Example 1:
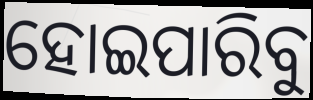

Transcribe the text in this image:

ହୋଇପାରିବୁ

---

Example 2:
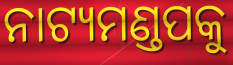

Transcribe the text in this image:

ନାଟ୍ୟମଣ୍ଡପକୁ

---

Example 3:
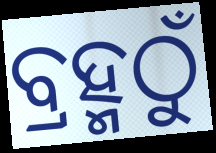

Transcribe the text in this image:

ବ୍ରହ୍ମଠୁଁ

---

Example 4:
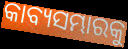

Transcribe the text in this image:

କାବ୍ୟସମ୍ଭାରକୁ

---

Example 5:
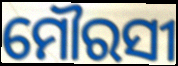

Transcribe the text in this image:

ମୌରସୀ